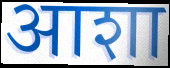
आशा